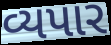
વ્યપાર